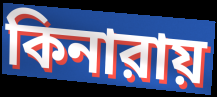
কিনারায়